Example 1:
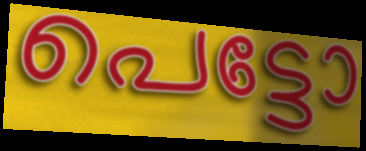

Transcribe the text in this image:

പെട്ടോ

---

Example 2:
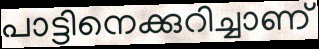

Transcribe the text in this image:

പാട്ടിനെക്കുറിച്ചാണ്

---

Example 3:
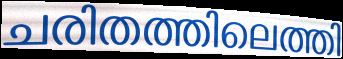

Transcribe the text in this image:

ചരിതത്തിലെത്തി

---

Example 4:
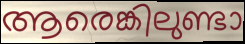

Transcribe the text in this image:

ആരെങ്കിലുണ്ടാ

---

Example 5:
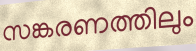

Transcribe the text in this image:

സങ്കരണത്തിലും